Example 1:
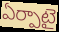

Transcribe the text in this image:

ఏర్పాటై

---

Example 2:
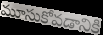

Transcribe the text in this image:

మూసుకోవడానికి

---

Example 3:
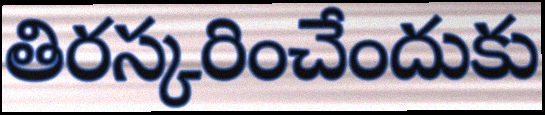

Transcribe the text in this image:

తిరస్కరించేందుకు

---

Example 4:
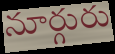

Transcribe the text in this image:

నూర్గురు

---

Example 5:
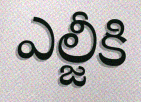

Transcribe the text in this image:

ఎల్జీకి